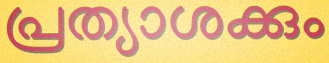
പ്രത്യാശക്കും